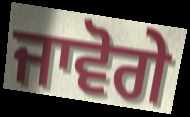
ਜਾਵੋਗੇ